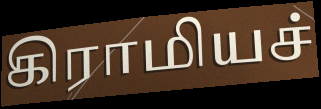
கிராமியச்